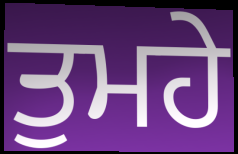
ਤੁਮਹੇ